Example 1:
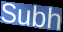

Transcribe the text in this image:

Subh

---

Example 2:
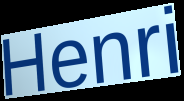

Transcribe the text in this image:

Henri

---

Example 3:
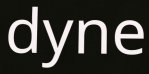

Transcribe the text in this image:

dyne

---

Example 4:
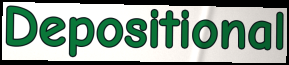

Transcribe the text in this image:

Depositional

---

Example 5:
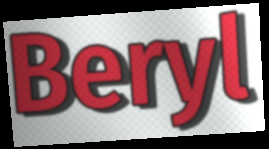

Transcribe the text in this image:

Beryl